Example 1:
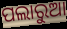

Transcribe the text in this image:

ପଲାରୁଆ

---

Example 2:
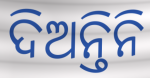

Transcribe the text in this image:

ଦିଅନ୍ତିନି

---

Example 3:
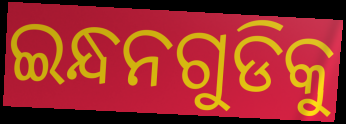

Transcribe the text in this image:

ଇନ୍ଧନଗୁଡିକୁ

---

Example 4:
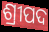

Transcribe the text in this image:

ଶ୍ରୀପଦ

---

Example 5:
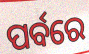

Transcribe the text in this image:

ପର୍ବରେ